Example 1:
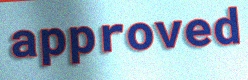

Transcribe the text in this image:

approved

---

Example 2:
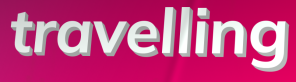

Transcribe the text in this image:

travelling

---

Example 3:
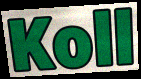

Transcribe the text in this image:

Koll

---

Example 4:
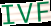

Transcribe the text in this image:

IVF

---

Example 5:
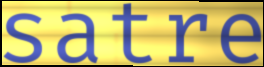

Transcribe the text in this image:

satre